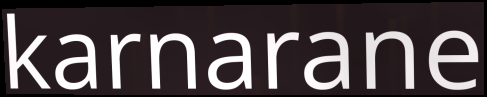
karnarane